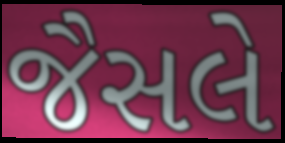
જૈસલે